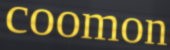
coomon